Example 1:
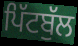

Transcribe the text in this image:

ਪਿੱਟਬੁੱਲ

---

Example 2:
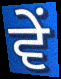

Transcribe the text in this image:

ਵੇਂ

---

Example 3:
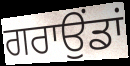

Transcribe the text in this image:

ਗਰਾਉਂਡਾਂ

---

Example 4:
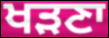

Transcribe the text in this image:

ਖੜਣਾ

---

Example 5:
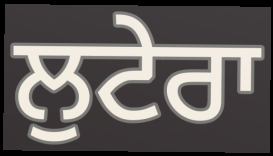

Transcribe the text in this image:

ਲੁਟੇਰਾ